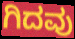
ಗಿದವು